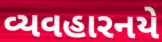
વ્યવહારનયે